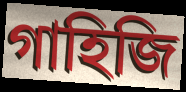
গাহিজি